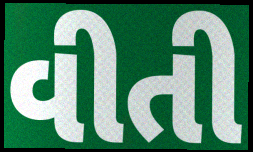
વીતી